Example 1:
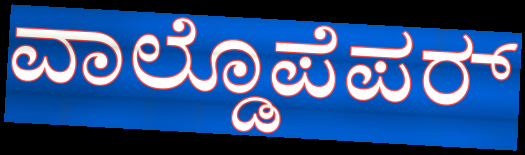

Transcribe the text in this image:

ವಾಲ್ಡೊಪೆಪರ್‍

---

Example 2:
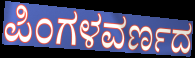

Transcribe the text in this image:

ಪಿಂಗಳವರ್ಣದ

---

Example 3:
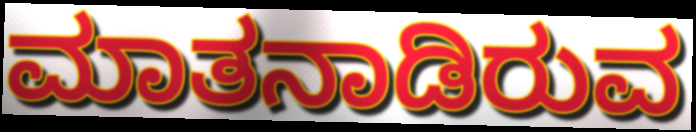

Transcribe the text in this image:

ಮಾತನಾಡಿರುವ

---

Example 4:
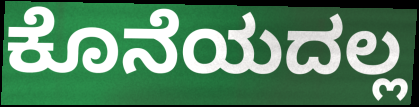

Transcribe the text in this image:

ಕೊನೆಯದಲ್ಲ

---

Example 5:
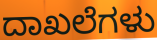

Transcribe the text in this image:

ದಾಖಲೆಗಳು